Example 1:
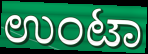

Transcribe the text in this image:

ಉಂಟಾ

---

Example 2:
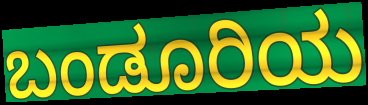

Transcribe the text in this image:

ಬಂಡೂರಿಯ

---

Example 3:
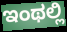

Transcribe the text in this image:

ಇಂಥಲ್ಲಿ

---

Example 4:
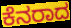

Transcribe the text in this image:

ಕೆನರಾದ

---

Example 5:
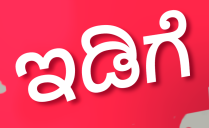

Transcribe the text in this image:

ಇಡಿಗೆ